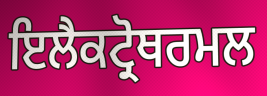
ਇਲੈਕਟ੍ਰੋਥਰਮਲ